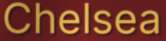
Chelsea